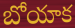
బోయాక